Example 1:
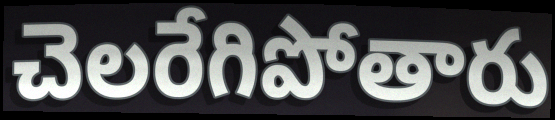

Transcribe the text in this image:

చెలరేగిపోతారు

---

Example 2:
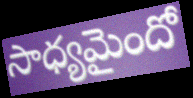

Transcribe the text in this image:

సాధ్యమైందో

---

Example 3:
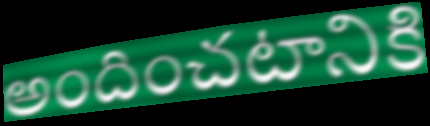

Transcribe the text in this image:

అందించటానికి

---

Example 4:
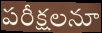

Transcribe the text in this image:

పరీక్షలనూ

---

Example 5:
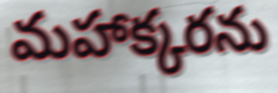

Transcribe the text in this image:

మహాక్కరను